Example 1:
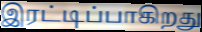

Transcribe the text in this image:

இரட்டிப்பாகிறது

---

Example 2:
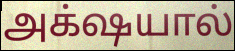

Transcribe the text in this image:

அக்‌ஷயால்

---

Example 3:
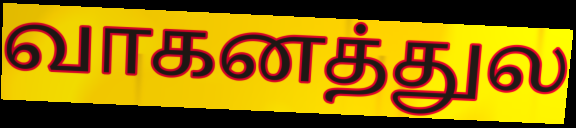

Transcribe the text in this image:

வாகனத்துல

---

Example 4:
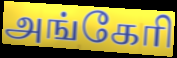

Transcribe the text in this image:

அங்கேரி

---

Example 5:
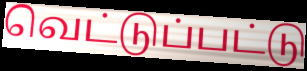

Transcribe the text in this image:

வெட்டுப்பட்டு